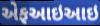
એફઆઇઆઇ